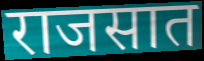
राजसात